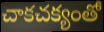
చాకచక్యంతో